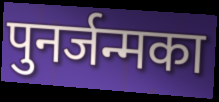
पुनर्जन्मका